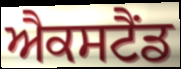
ਐਕਸਟੈਂਡ